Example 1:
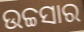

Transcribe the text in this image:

ଉଚ୍ଚସାର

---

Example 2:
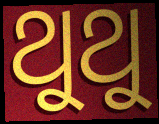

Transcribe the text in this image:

ଥୁଥୁ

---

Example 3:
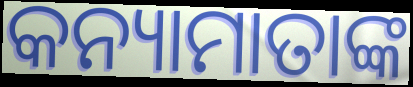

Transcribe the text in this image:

କନ୍ୟାମାତାଙ୍କ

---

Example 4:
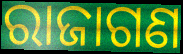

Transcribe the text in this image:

ରାଜାଗଣ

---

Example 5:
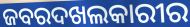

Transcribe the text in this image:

ଜବରଦଖଲକାରୀର